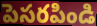
పెసరపిండి